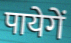
पायेगें